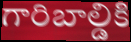
గారిబాల్డికి